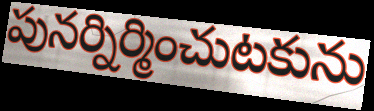
పునర్నిర్మించుటకును